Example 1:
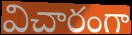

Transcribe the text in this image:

విచారంగా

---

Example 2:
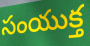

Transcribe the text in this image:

సంయుక్త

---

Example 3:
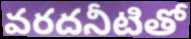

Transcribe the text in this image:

వరదనీటితో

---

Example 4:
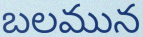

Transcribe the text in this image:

బలమున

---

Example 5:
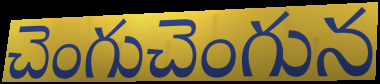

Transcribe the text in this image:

చెంగుచెంగున